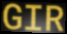
GIR